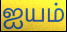
ஐயம்